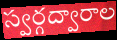
స్వర్గద్వారాల